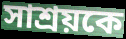
সাশ্রয়কে